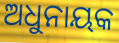
ଅଧୁନାୟକ